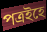
পত্ৰইহে